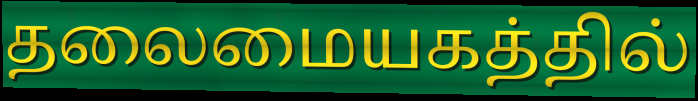
தலைமையகத்தில்